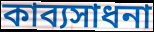
কাব্যসাধনা